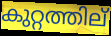
കുറ്റത്തില്